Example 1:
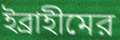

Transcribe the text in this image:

ইব্রাহীমের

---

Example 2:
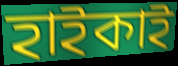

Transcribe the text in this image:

হাইকাই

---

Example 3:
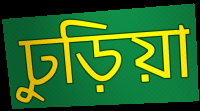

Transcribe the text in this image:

ঢুড়িয়া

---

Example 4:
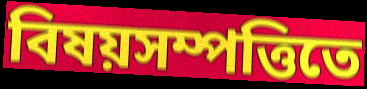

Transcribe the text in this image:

বিষয়সম্পত্তিতে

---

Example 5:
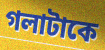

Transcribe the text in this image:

গলাটাকে